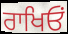
ਰਾਖਿਓਂ